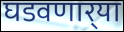
घडवणार्‍या